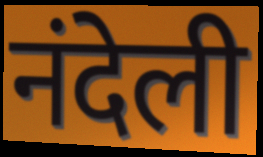
नंदेली